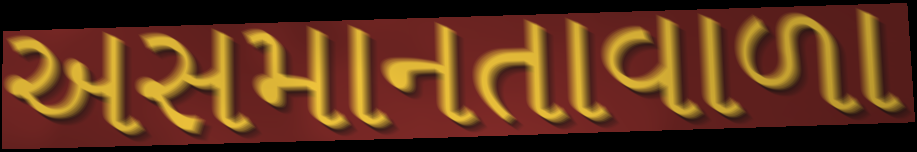
અસમાનતાવાળા